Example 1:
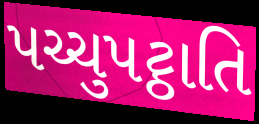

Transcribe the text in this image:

પચ્ચુપટ્ઠાતિ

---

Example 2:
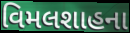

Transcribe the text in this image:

વિમલશાહના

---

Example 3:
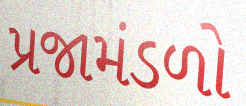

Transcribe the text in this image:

પ્રજામંડળો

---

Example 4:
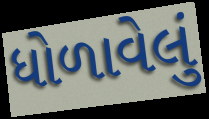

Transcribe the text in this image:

ધોળાવેલું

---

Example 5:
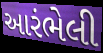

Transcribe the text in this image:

આરંભેલી